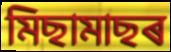
মিছামাছৰ